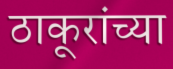
ठाकूरांच्या